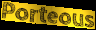
Porteous